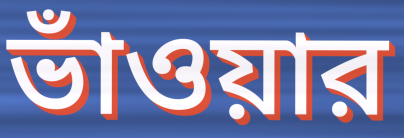
ভাঁওয়ার